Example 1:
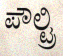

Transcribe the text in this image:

ಪೌಲ್ಟ್ರಿ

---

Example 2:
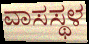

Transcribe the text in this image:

ವಾಸಸ್ಥಳ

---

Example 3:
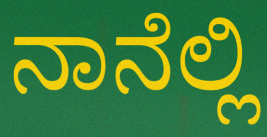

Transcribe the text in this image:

ನಾನೆಲ್ಲಿ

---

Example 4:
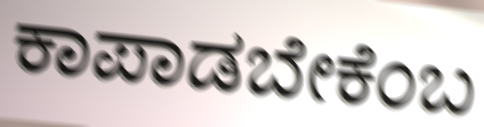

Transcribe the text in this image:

ಕಾಪಾಡಬೇಕೆಂಬ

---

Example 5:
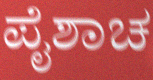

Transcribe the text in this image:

ಪೈಶಾಚ